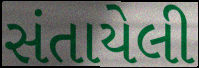
સંતાયેલી